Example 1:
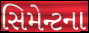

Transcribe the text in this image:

સિમેન્ટના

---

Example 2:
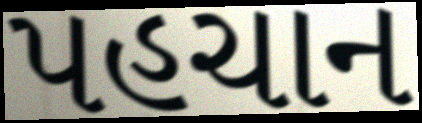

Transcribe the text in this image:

પહચાન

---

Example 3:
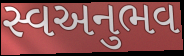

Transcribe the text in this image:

સ્વઅનુભવ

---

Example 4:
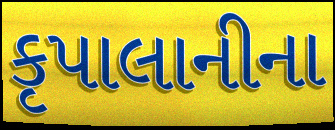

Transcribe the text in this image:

કૃપાલાનીના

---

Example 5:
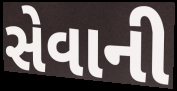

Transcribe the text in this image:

સેવાની